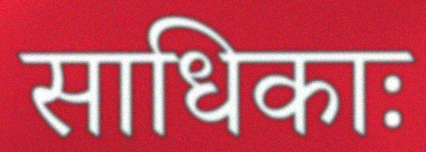
साधिकाः